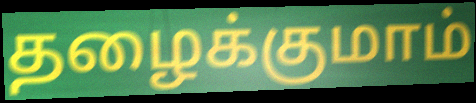
தழைக்குமாம்